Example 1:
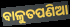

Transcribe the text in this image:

ବାଳୁତପଣିଆ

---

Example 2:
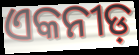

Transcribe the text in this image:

ଏକନୀଡ଼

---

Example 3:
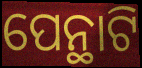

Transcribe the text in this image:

ପେନ୍ଥାଟି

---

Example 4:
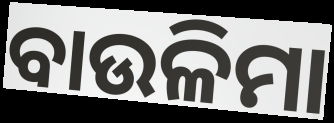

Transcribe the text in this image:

ବାଉଳିମା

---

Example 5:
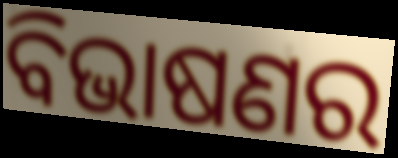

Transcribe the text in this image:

ବିଭାଷଣର